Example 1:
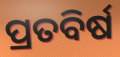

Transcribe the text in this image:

ପ୍ରତବିର୍ଷ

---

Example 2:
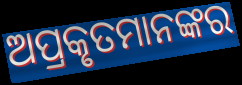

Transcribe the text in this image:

ଅପ୍ରକୃତମାନଙ୍କର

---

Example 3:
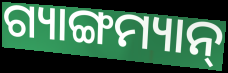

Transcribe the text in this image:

ଗ୍ୟାଙ୍ଗମ୍ୟାନ୍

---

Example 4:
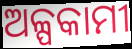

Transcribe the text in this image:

ଅଳ୍ପକାମୀ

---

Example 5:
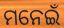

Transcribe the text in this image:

ମନେଇଁ